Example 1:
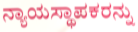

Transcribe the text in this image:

ನ್ಯಾಯಸ್ಥಾಪಕರನ್ನು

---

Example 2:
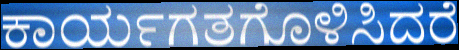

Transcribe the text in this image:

ಕಾರ್ಯಗತಗೊಳಿಸಿದರೆ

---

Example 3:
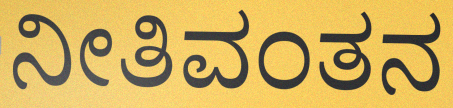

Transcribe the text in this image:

ನೀತಿವಂತನ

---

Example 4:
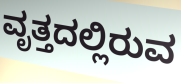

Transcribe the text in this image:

ವೃತ್ತದಲ್ಲಿರುವ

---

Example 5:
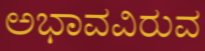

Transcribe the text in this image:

ಅಭಾವವಿರುವ